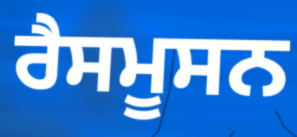
ਰੈਸਮੂਸਨ